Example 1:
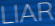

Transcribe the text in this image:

LIAR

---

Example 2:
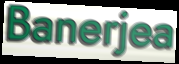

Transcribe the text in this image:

Banerjea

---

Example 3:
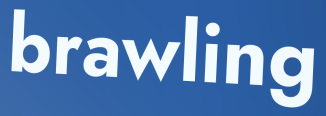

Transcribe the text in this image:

brawling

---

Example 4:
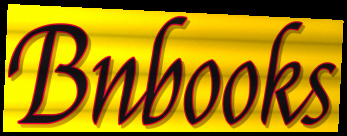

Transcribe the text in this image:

Bnbooks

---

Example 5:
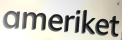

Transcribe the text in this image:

ameriket